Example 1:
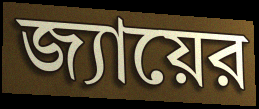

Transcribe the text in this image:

জ্যায়ের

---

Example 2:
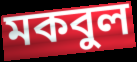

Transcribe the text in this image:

মকবুল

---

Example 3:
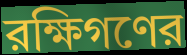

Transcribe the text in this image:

রক্ষিগণের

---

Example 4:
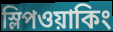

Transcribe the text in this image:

স্লিপওয়াকিং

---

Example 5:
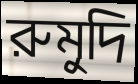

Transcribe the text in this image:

রুমুদি